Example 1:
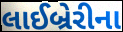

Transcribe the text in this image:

લાઈબ્રેરીના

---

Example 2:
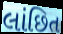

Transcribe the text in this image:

લાંછિત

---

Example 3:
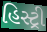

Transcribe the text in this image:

હિસ્ટ્રી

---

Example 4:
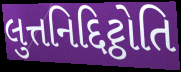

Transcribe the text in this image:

લુત્તનિદ્દિટ્ઠોતિ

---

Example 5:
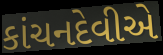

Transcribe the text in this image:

કાંચનદેવીએ